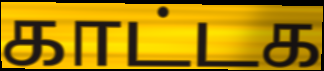
காட்டக